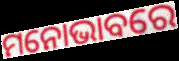
ମନୋଭାବରେ